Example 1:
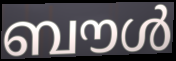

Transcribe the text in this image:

ബൗൾ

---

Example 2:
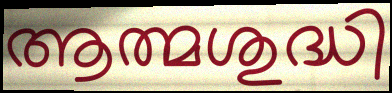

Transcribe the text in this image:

ആത്മശുദ്ധി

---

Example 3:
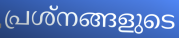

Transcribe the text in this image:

പ്രശ്നങ്ങളുടെ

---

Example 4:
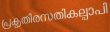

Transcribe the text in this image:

പ്രകൃതിരസതികല്പാപി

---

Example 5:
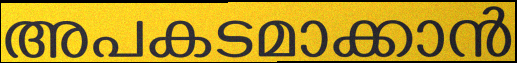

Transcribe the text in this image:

അപകടമാക്കാൻ